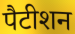
पैटीशन